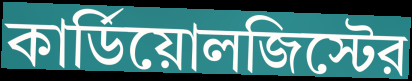
কার্ডিয়োলজিস্টের